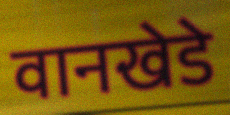
वानखेडे